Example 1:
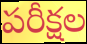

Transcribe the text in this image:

పరీక్షల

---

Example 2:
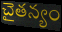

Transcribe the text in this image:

చైతన్యం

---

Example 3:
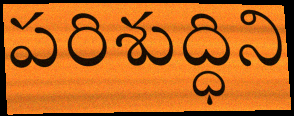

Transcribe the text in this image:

పరిశుద్ధిని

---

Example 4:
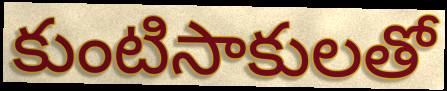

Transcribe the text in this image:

కుంటిసాకులతో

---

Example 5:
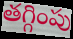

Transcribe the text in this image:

తగ్గింపు